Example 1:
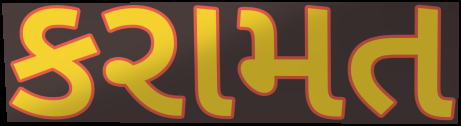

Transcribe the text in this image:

કરામત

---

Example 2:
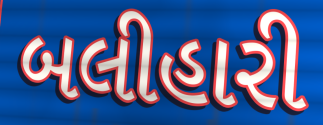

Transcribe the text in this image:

બલીહારી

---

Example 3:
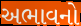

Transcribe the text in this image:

અભાવનો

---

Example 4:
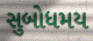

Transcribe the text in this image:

સુબોધમય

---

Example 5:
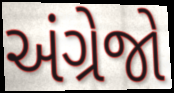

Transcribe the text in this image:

અંગ્રેજો